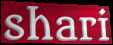
shari